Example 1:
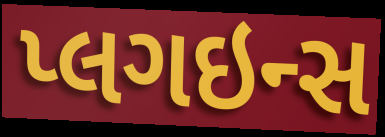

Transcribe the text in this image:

પ્લગઇન્સ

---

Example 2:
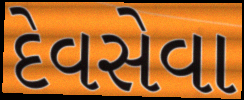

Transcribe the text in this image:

દેવસેવા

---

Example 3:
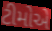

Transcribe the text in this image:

ટીમોએ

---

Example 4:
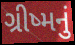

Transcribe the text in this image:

ગ્રીષ્મનું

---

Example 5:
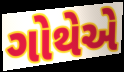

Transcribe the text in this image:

ગોથેએ